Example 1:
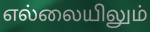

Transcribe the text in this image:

எல்லையிலும்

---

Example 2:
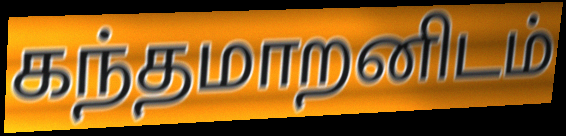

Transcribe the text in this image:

கந்தமாறனிடம்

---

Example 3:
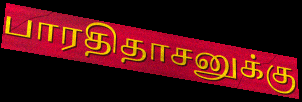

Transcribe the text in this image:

பாரதிதாசனுக்கு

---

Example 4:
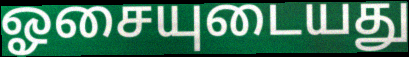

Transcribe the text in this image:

ஓசையுடையது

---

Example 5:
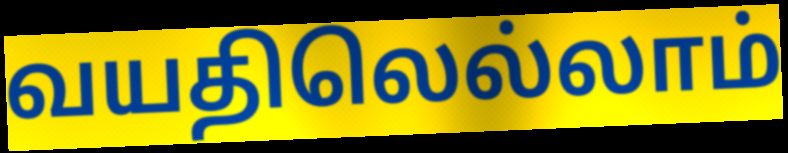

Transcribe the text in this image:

வயதிலெல்லாம்